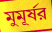
মুমূর্ষর